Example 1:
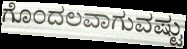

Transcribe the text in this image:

ಗೊಂದಲವಾಗುವಷ್ಟು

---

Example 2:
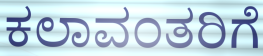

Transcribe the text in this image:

ಕಲಾವಂತರಿಗೆ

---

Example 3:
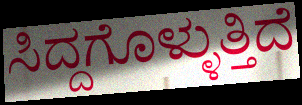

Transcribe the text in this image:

ಸಿದ್ದಗೊಳ್ಳುತ್ತಿದೆ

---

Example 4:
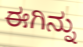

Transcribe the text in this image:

ಈಗಿನ್ನು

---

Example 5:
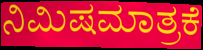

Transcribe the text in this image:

ನಿಮಿಷಮಾತ್ರಕೆ